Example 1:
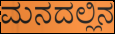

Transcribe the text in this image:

ಮನದಲ್ಲಿನ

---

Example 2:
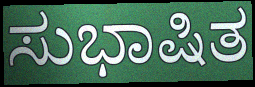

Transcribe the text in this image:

ಸುಭಾಷಿತ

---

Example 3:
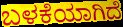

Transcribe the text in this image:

ಬಳಕೆಯಾಗಿದೆ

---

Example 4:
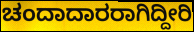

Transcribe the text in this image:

ಚಂದಾದಾರರಾಗಿದ್ದೀರಿ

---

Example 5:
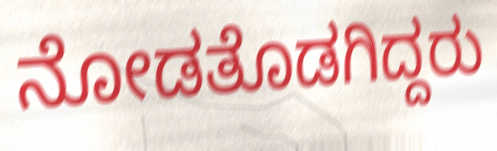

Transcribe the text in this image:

ನೋಡತೊಡಗಿದ್ದರು